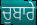
ਚੁਬਾਰੇ